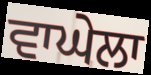
ਵਾਘੇਲਾ